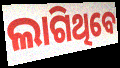
ଲାଗିଥିବେ